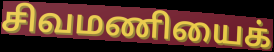
சிவமணியைக்